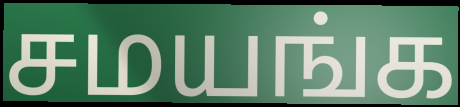
சமயங்க